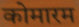
कोमारम